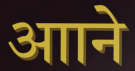
आाने